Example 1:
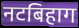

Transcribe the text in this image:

नटबिहाग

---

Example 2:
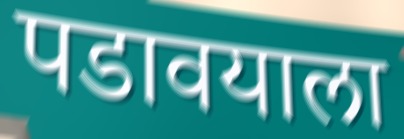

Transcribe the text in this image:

पडावयाला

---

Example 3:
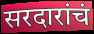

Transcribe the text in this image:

सरदारांचं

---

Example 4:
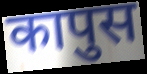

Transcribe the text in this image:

कापुस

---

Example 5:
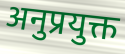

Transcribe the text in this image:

अनुप्रयुक्त